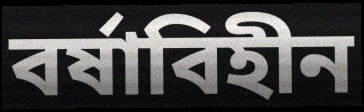
বর্ষাবিহীন